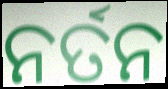
ନର୍ତନ